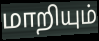
மாறியும்